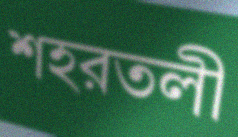
শহরতলী